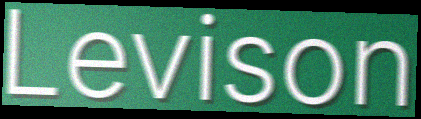
Levison